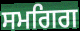
ਸਮਗਿਗ